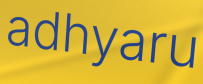
adhyaru